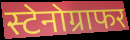
स्टेनोग्राफर